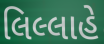
લિલ્લાહે